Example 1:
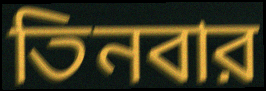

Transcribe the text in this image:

তিনবার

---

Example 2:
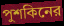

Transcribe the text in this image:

পুশকিনের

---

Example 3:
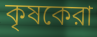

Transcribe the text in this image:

কৃষকেরা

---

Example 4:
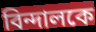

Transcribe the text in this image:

বিন্দালকে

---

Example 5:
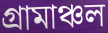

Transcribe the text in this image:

গ্রামাঞ্চল